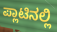
ಪ್ಲಾಟಿನಲ್ಲಿ